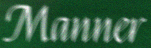
Manner